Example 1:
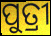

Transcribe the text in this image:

ପୁତ୍ରୀ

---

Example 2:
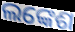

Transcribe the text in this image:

ଲଙ୍କେଶ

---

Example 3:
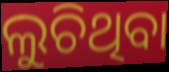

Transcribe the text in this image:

ଲୁଚିଥିବା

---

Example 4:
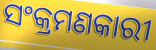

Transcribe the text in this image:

ସଂକ୍ରମଣକାରୀ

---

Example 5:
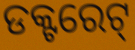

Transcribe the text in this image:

ଡକ୍ଟରେଟ୍